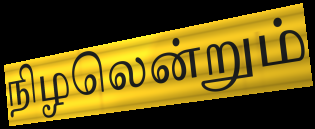
நிழலென்றும்